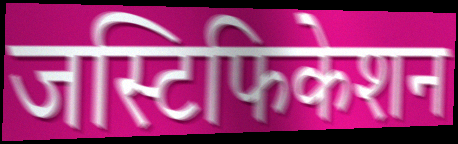
जस्टिफिकेशन